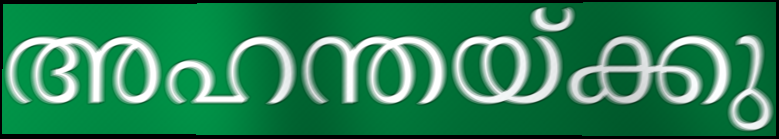
അഹന്തയ്ക്കു